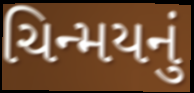
ચિન્મયનું